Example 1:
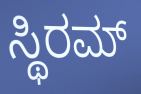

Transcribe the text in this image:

ಸ್ಥಿರಮ್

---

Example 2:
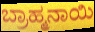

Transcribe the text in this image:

ಬ್ರಾಹ್ಮನಾಯಿ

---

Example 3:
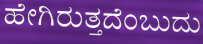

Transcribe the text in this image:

ಹೇಗಿರುತ್ತದೆಂಬುದು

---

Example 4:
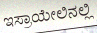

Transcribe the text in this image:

ಇಸ್ರಾಯೇಲಿನಲ್ಲಿ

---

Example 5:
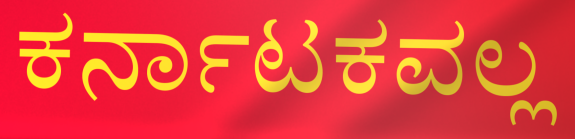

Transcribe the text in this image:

ಕರ್ನಾಟಕವಲ್ಲ